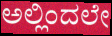
ಅಲ್ಲಿಂದಲೇ